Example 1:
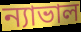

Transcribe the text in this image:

ন্যাভাল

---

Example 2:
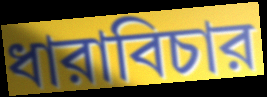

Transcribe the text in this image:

ধারাবিচার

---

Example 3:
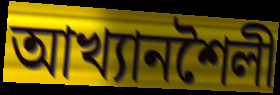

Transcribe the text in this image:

আখ্যানশৈলী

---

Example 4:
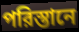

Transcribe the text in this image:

পরিস্তানে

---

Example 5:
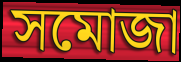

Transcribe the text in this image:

সমোজা